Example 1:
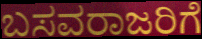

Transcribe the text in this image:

ಬಸವರಾಜರಿಗೆ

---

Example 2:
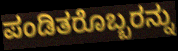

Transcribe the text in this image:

ಪಂಡಿತರೊಬ್ಬರನ್ನು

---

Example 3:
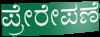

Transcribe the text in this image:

ಪ್ರೇರೇಪಣೆ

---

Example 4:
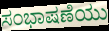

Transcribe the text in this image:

ಸಂಭಾಷಣೆಯು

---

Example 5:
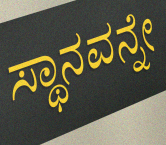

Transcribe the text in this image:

ಸ್ಥಾನವನ್ನೇ